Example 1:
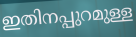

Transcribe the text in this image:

ഇതിനപ്പുറമുള്ള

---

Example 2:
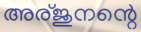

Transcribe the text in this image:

അര്ജുനന്റെ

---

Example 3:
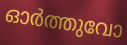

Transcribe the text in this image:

ഓർത്തുവോ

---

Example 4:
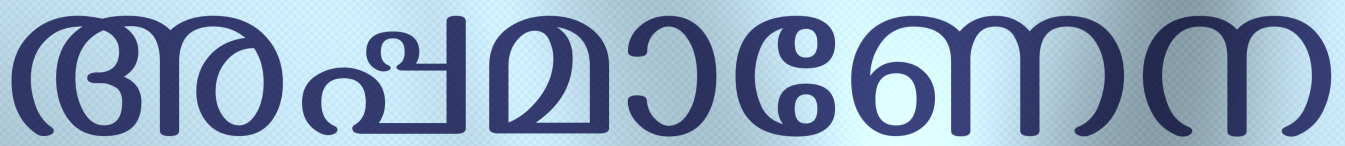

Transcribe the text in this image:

അപ്പമാണേന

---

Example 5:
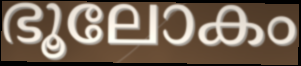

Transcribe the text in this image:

ഭൂലോകം